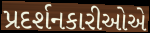
પ્રદર્શનકારીઓએ